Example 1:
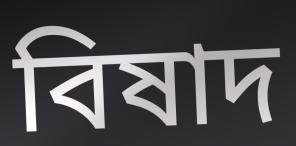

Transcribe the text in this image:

বিষাদ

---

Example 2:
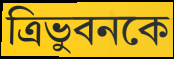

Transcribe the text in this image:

ত্রিভুবনকে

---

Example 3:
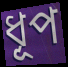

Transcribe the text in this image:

ধূপ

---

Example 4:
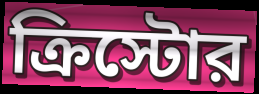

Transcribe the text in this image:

ক্রিস্টোর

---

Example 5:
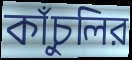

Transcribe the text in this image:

কাঁচুলির